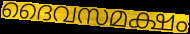
ദൈവസമക്ഷം